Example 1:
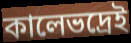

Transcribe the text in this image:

কালেভদ্রেই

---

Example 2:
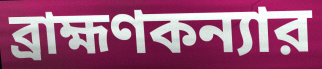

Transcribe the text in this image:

ব্রাহ্মণকন্যার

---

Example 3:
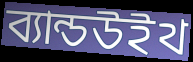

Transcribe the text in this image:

ব্যান্ডউইথ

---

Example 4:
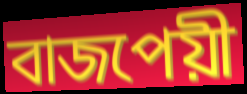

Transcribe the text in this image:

বাজপেয়ী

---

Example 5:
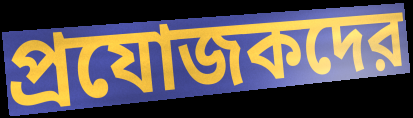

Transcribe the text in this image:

প্রযোজকদের